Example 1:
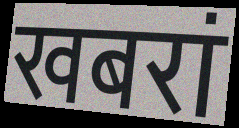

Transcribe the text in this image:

खबरां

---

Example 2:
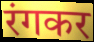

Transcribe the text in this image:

रंगकर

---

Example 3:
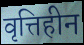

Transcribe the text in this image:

वृत्तिहीन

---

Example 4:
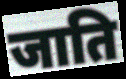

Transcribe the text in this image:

जाति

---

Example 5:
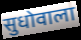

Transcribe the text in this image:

सुधोवाला